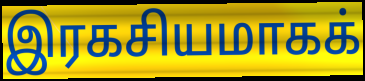
இரகசியமாகக்